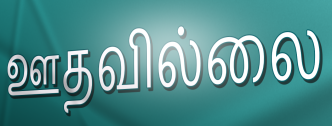
ஊதவில்லை